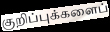
குறிப்புக்களைப்